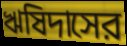
ঋষিদাসের